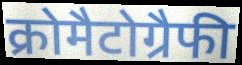
क्रोमैटोग्रैफी